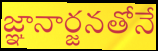
జ్ఞానార్జనతోనే